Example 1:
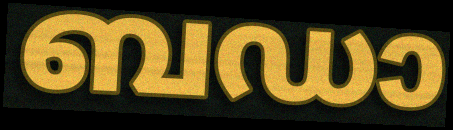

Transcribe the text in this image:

ബഡാ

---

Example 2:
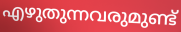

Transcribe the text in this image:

എഴുതുന്നവരുമുണ്ട്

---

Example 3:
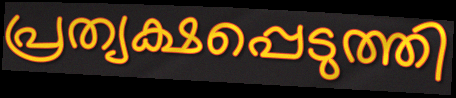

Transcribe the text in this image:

പ്രത്യക്ഷപ്പെടുത്തി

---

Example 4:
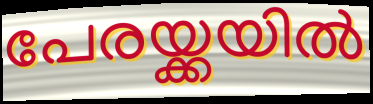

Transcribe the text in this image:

പേരയ്ക്കയിൽ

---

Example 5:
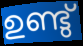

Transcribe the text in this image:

ഉണ്ടു്